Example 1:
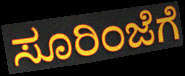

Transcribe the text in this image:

ಸೂರಿಂಜೆಗೆ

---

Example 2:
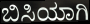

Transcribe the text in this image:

ಬಿಸಿಯಾಗಿ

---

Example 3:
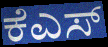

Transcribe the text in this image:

ಕೆಎಸ್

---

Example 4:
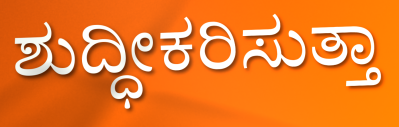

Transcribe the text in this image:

ಶುದ್ಧೀಕರಿಸುತ್ತಾ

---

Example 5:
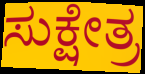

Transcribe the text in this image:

ಸುಕ್ಷೇತ್ರ